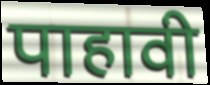
पाहावी